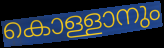
കൊള്ളാനും